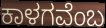
ಕಾಳಗವೆಂಬ